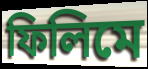
ফিলিমে